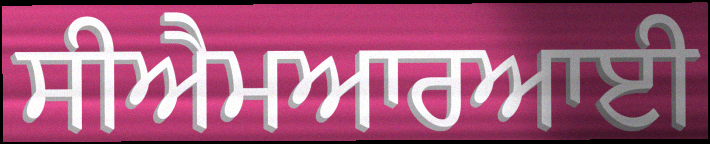
ਸੀਐਮਆਰਆਈ